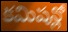
కమిషన్లో